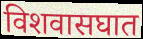
विशवासघात